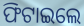
ଫିଟାଇଲେ